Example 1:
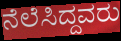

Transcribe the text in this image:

ನೆಲೆಸಿದ್ದವರು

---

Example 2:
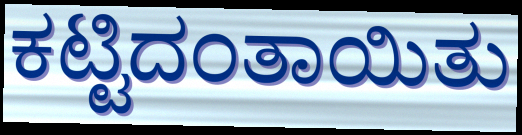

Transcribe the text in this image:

ಕಟ್ಟಿದಂತಾಯಿತು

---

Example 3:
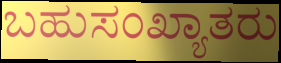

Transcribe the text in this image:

ಬಹುಸಂಖ್ಯಾತರು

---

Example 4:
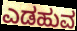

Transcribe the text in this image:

ಎಡಹುವ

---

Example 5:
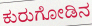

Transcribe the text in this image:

ಕುರುಗೋಡಿನ